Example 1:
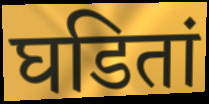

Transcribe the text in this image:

घडितां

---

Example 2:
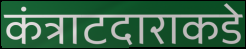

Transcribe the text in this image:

कंत्राटदाराकडे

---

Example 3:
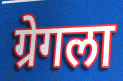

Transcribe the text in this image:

ग्रेगला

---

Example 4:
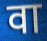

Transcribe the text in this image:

वा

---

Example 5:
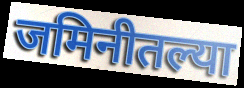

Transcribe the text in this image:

जमिनीतल्या